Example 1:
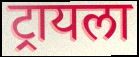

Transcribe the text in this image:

ट्रायला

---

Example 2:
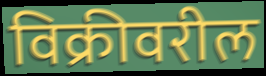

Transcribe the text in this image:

विक्रीवरील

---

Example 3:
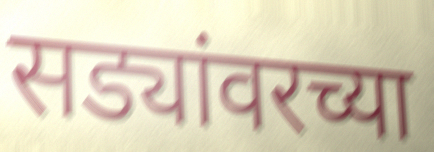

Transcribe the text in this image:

सड्यांवरच्या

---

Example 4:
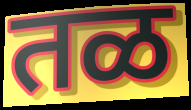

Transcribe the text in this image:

तळ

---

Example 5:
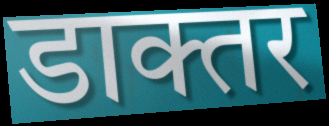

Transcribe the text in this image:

डाक्तर